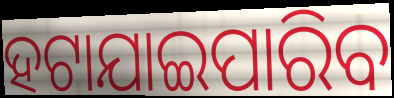
ହଟାଯାଇପାରିବ